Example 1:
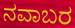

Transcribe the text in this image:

ನವಾಬರ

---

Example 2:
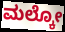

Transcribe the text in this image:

ಮಲ್ಕೋ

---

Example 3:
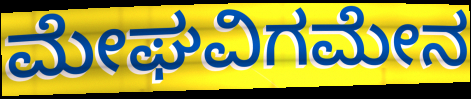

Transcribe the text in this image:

ಮೇಘವಿಗಮೇನ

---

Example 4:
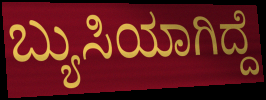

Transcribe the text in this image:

ಬ್ಯುಸಿಯಾಗಿದ್ದೆ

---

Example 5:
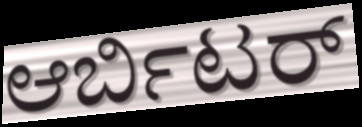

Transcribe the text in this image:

ಆರ್ಬಿಟರ್